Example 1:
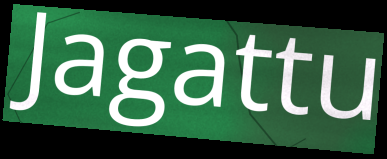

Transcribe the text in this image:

Jagattu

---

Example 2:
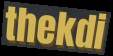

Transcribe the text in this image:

thekdi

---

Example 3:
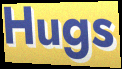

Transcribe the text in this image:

Hugs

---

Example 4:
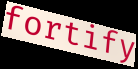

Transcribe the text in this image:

fortify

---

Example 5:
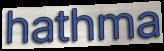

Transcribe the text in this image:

hathma